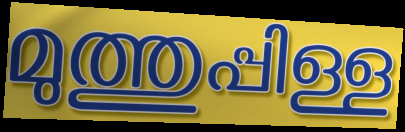
മുത്തുപ്പിള്ള